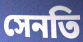
সেনতি